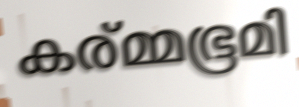
കര്മ്മഭൂമി